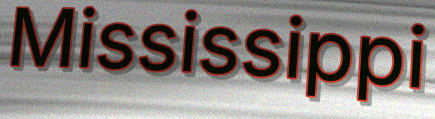
Mississippi